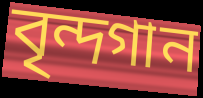
বৃন্দগান